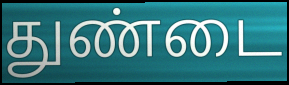
துண்டை